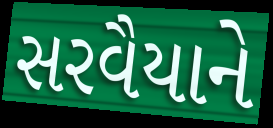
સરવૈયાને